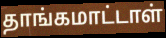
தாங்கமாட்டாள்